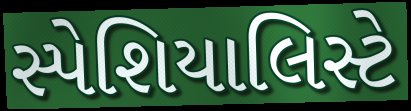
સ્પેશિયાલિસ્ટે